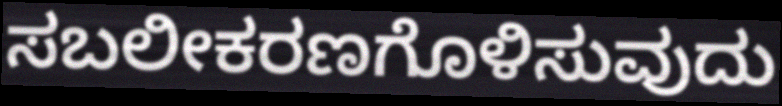
ಸಬಲೀಕರಣಗೊಳಿಸುವುದು